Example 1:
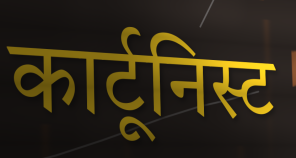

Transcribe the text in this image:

कार्टूनिस्ट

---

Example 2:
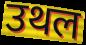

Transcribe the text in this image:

उथल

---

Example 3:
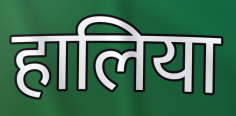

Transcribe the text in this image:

हालिया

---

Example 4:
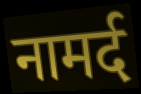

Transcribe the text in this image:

नामर्द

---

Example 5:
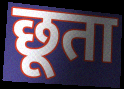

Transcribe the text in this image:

छूता